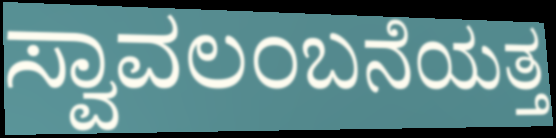
ಸ್ವಾವಲಂಬನೆಯತ್ತ